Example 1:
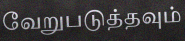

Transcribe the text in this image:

வேறுபடுத்தவும்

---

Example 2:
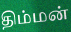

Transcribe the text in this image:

திம்மன்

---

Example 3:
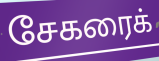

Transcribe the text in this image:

சேகரைக்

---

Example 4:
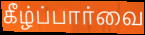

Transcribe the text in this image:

கீழ்ப்பார்வை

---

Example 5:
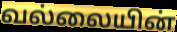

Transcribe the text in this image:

வல்லையின்